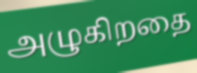
அழுகிறதை